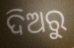
ଦିଅରୁ